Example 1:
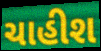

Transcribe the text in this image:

ચાહીશ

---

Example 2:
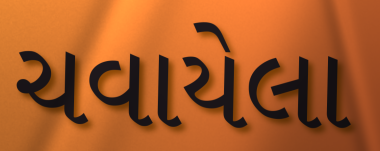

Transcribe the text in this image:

ચવાયેલા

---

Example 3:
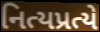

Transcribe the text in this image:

નિત્યપ્રત્યે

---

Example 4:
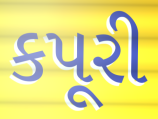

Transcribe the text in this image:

કપૂરી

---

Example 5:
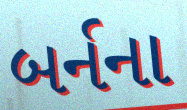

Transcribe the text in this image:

બર્નના